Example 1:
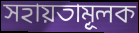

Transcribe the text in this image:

সহায়তামূলক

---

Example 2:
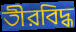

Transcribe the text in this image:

তীরবিদ্ধ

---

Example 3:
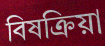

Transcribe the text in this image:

বিষক্রিয়া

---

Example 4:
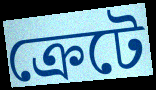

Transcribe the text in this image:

ক্রেটে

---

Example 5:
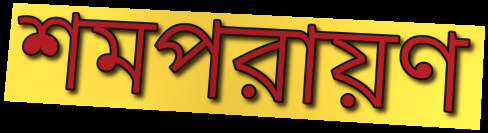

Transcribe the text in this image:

শমপরায়ণ